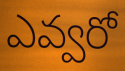
ఎవ్వరో